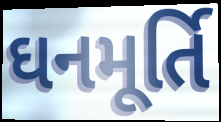
ઘનમૂર્તિ